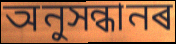
অনুসন্ধানৰ